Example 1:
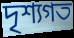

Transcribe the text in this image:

দৃশ্যগত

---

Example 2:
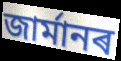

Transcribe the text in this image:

জাৰ্মানৰ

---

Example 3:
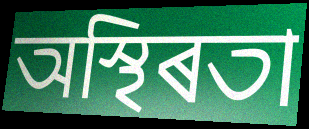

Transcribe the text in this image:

অস্থিৰতা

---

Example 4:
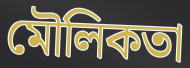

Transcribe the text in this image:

মৌলিকতা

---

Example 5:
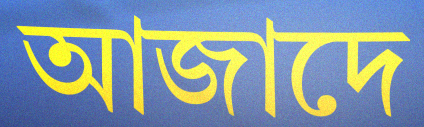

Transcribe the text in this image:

আজাদে